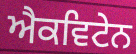
ਐਕਵਿਟੇਨ